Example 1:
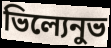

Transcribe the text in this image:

ভিল্যেনুভ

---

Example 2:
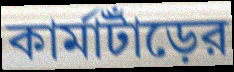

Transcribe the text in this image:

কার্মাটাঁড়ের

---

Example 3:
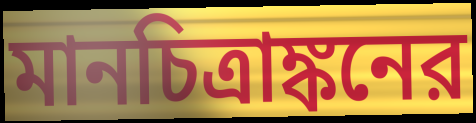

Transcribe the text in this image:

মানচিত্রাঙ্কনের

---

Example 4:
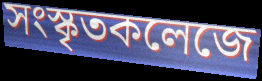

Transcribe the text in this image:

সংস্কৃতকলেজে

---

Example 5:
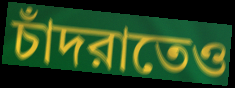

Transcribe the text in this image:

চাঁদরাতেও